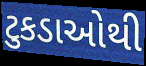
ટુકડાઓથી